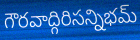
గౌరవాద్గిరిసన్నిభమ్